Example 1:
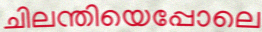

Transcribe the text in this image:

ചിലന്തിയെപ്പോലെ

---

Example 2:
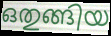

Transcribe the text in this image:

ഒതുങ്ങിയ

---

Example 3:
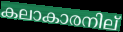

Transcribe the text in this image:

കലാകാരനില്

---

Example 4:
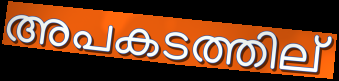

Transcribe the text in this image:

അപകടത്തില്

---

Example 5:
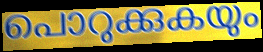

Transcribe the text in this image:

പൊറുക്കുകയും